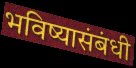
भविष्यासंबंधी